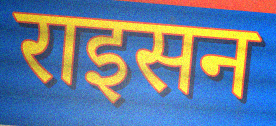
राइसन